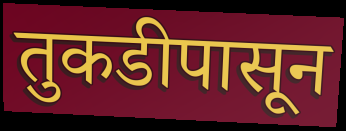
तुकडीपासून